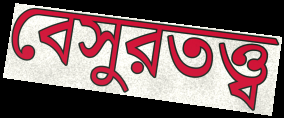
বেসুরতত্ত্ব